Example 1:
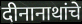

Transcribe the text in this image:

दीनानाथांचे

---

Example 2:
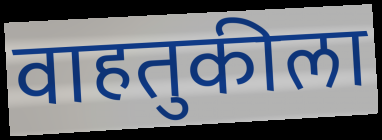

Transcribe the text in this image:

वाहतुकीला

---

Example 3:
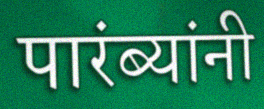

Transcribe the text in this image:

पारंब्यांनी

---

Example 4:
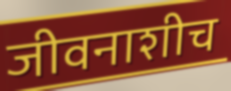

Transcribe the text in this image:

जीवनाशीच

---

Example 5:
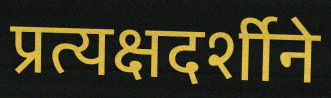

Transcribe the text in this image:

प्रत्यक्षदर्शीने